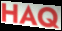
HAQ